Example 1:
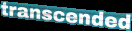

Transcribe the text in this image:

transcended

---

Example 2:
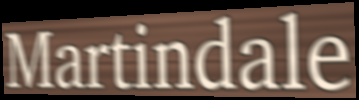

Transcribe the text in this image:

Martindale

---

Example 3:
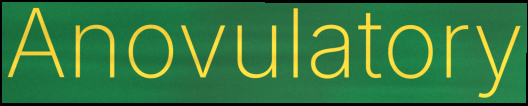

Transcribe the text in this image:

Anovulatory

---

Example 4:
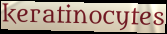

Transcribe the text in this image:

keratinocytes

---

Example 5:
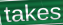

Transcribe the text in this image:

takes